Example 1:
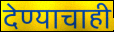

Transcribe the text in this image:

देण्याचाही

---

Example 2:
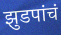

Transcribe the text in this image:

झुडपांचं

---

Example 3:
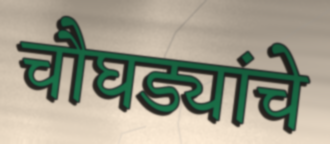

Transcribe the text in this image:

चौघड्यांचे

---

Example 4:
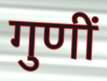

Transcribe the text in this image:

गुणीं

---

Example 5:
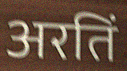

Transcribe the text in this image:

अरतिं